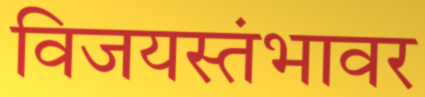
विजयस्तंभावर